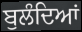
ਬੁਲੰਦਿਆਂ